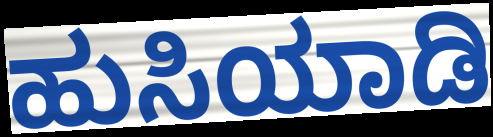
ಹುಸಿಯಾಡಿ